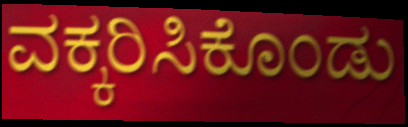
ವಕ್ಕರಿಸಿಕೊಂಡು